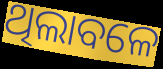
ଥିଲାବଳେ